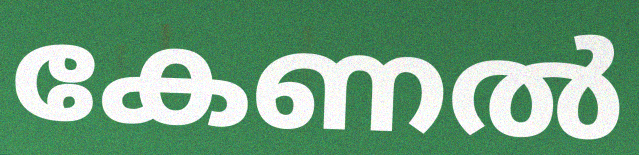
കേണൽ